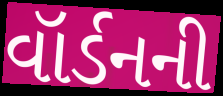
વૉર્ડનની